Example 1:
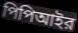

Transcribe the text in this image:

পিপিআইর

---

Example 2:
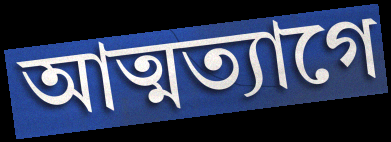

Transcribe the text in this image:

আত্মত্যাগে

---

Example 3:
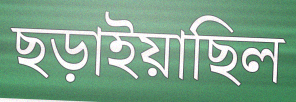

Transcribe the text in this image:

ছড়াইয়াছিল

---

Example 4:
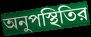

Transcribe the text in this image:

অনুপস্থিতির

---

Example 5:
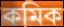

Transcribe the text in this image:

কমিক